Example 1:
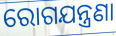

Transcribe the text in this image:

ରୋଗଯନ୍ତ୍ରଣା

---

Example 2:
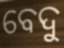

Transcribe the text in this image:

ବେଦୁ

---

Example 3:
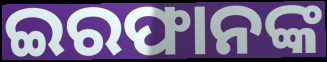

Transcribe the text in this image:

ଇରଫାନଙ୍କ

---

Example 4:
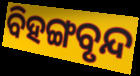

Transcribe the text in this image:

ବିହଙ୍ଗବୃନ୍ଦ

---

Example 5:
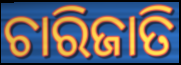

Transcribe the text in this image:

ଚାରିଜାତି